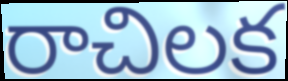
రాచిలక